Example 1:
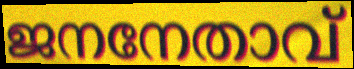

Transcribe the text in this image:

ജനനേതാവ്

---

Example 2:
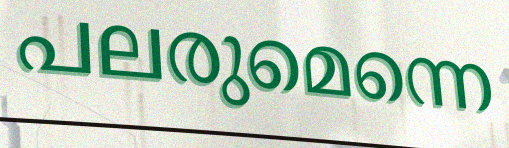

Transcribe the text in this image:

പലരുമെന്നെ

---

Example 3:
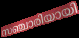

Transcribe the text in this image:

സഞ്ചാരിയായി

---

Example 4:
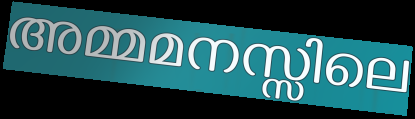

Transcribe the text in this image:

അമ്മമനസ്സിലെ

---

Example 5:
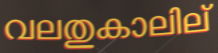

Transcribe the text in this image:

വലതുകാലില്